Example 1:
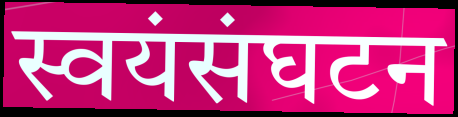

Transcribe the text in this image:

स्वयंसंघटन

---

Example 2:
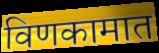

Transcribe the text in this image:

विणकामात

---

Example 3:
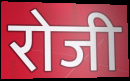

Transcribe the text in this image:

रोजी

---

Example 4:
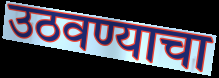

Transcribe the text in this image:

उठवण्याचा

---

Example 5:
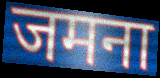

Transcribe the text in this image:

जमना